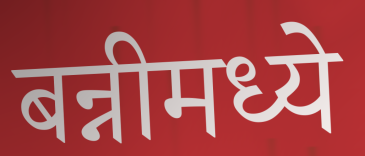
बन्नीमध्ये